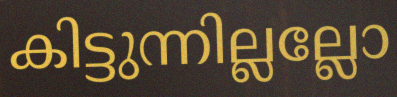
കിട്ടുന്നില്ലല്ലോ